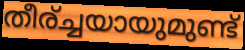
തീര്ച്ചയായുമുണ്ട്